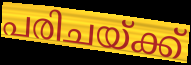
പരിചയ്ക്ക്